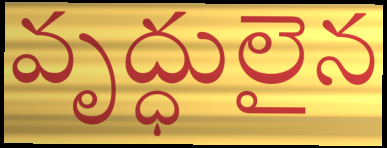
వృద్ధులైన